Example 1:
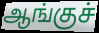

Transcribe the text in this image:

ஆங்குச்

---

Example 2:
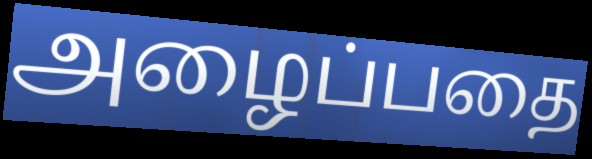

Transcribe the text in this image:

அழைப்பதை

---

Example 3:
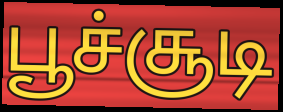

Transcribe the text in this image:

பூச்சூடி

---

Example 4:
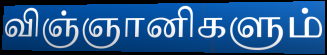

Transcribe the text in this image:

விஞ்ஞானிகளும்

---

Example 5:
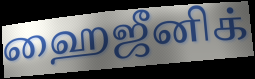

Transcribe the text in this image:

ஹைஜீனிக்